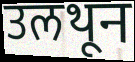
उलथून